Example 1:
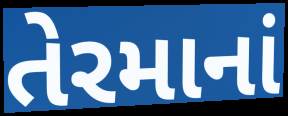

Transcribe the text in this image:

તેરમાનાં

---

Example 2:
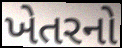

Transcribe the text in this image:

ખેતરનો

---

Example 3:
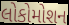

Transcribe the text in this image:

લોકોમોશન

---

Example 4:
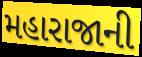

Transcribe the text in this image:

મહારાજાની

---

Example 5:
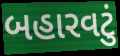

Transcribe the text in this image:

બહારવટું